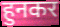
हुनकर